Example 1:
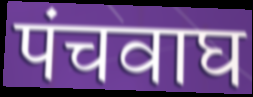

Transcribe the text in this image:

पंचवाघ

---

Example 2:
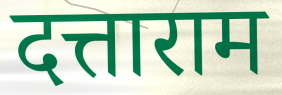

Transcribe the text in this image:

दत्ताराम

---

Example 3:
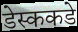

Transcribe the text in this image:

डेस्ककडे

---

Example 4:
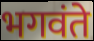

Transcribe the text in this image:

भगवंते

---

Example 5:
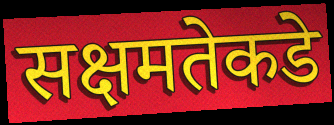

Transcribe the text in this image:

सक्षमतेकडे